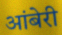
आंबेरी